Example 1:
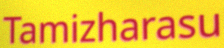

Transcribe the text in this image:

Tamizharasu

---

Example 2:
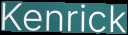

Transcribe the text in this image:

Kenrick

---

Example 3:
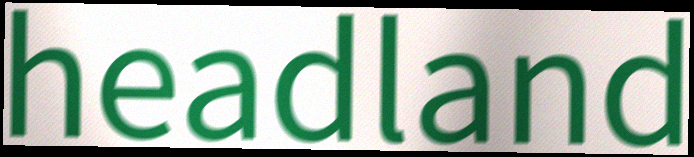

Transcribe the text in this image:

headland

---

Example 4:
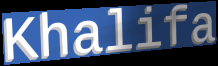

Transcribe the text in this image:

Khalifa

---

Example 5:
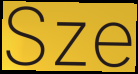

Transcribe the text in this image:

Sze